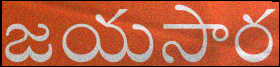
జయసార